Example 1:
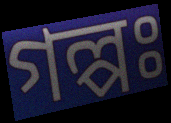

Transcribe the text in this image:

গল্পঃ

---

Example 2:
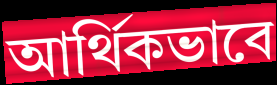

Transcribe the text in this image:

আর্থিকভাবে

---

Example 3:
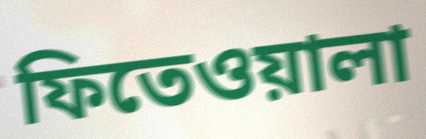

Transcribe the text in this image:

ফিতেওয়ালা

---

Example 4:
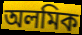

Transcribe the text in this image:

অলমিক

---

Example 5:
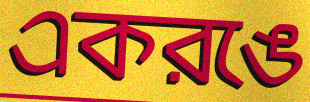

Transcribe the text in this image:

একরঙে